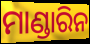
ମାଣ୍ଡାରିନ